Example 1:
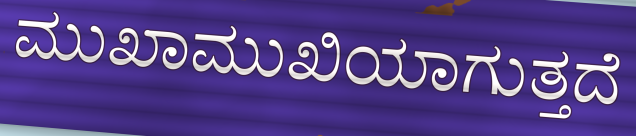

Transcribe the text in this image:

ಮುಖಾಮುಖಿಯಾಗುತ್ತದೆ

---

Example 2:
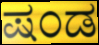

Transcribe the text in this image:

ಷಂಡ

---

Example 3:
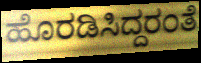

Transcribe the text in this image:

ಹೊರಡಿಸಿದ್ದರಂತೆ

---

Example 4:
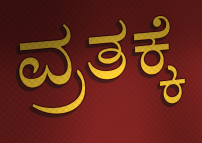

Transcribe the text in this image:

ವ್ರತಕ್ಕೆ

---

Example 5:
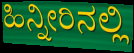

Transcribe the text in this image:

ಹಿನ್ನೀರಿನಲ್ಲಿ